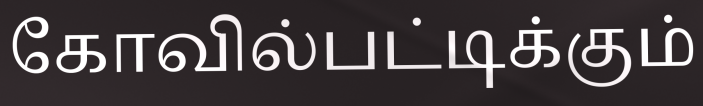
கோவில்பட்டிக்கும்